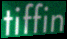
tiffin